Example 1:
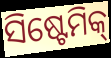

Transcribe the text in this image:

ସିଷ୍ଟେମିକ୍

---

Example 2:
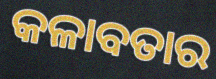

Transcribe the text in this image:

କଳାବତାର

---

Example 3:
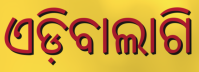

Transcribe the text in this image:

ଏଡ଼ିବାଲାଗି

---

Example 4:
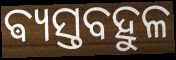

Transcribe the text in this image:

ଵ୍ୟସ୍ତବହୁଳ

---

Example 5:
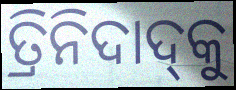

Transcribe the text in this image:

ତ୍ରିନିଦାଦ୍‍କୁ